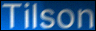
Tilson